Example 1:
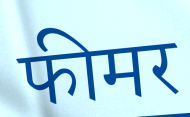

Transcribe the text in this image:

फीमर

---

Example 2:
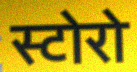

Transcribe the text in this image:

स्टोरो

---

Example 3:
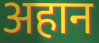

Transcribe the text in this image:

अहान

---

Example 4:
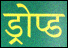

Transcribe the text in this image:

ड्रोप्ड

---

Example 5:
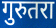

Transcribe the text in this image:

गुरुतरा